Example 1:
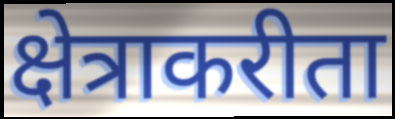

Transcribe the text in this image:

क्षेत्राकरीता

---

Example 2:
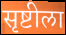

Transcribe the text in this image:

सृष्टीला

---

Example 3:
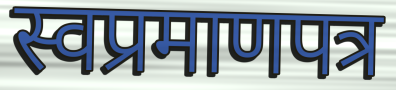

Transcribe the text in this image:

स्वप्रमाणपत्र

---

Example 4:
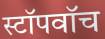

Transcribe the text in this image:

स्टॉपवॉच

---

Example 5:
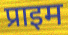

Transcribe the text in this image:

प्राइम